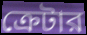
ক্রেটার